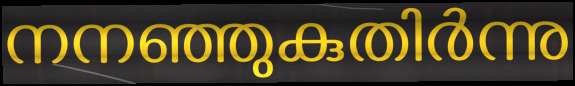
നനഞ്ഞുകുതിർന്നു